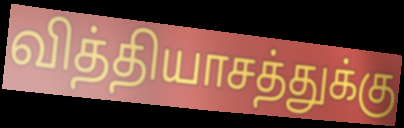
வித்தியாசத்துக்கு